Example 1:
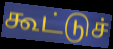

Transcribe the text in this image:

கூட்டுச்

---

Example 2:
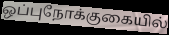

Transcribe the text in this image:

ஒப்புநோக்குகையில்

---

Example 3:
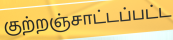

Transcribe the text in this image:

குற்றஞ்சாட்டப்பட்ட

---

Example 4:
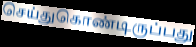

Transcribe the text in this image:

செய்துகொண்டிருப்பது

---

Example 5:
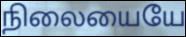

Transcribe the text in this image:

நிலையையே